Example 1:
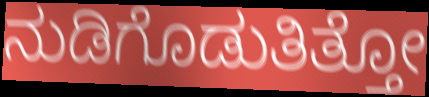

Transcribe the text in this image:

ನುಡಿಗೊಡುತಿತ್ತೋ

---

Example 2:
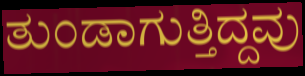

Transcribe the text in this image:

ತುಂಡಾಗುತ್ತಿದ್ದವು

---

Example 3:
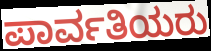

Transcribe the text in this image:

ಪಾರ್ವತಿಯರು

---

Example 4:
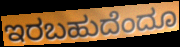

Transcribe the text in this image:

ಇರಬಹುದೆಂದೂ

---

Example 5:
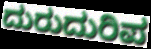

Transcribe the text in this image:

ದುರುದುರಿಪ